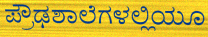
ಪ್ರೌಢಶಾಲೆಗಳಲ್ಲಿಯೂ